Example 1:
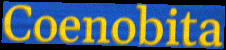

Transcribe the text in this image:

Coenobita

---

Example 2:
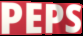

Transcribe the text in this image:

PEPS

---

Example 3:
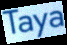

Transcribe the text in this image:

Taya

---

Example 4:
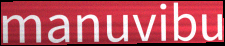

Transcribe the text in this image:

manuvibu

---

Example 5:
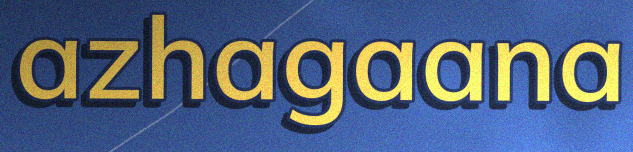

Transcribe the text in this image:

azhagaana